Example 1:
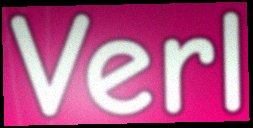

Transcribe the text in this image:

Verl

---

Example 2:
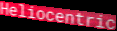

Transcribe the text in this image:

Heliocentric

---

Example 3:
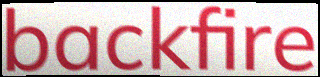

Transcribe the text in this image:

backfire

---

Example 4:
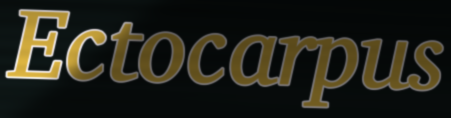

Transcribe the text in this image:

Ectocarpus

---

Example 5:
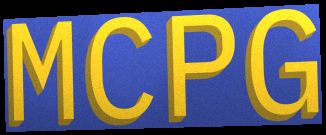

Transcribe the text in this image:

MCPG